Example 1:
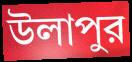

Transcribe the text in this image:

উলাপুর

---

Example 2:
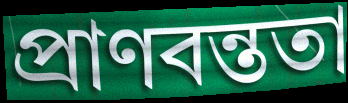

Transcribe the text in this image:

প্রাণবন্ততা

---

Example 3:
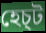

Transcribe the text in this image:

হেচ্ট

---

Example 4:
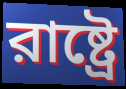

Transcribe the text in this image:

রাষ্ট্রে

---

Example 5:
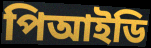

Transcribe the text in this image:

পিআইডি